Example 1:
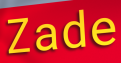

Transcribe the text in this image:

Zade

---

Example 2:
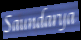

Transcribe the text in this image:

Saundarya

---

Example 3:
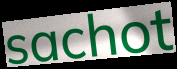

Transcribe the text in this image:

sachot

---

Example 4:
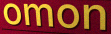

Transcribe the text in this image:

omon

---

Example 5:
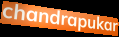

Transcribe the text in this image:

chandrapukar